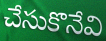
చేసుకొనేవి